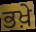
ਭਖ਼ੇ